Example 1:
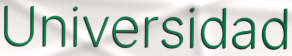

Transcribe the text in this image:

Universidad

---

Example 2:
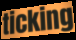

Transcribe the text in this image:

ticking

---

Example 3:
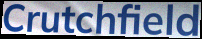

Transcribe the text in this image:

Crutchfield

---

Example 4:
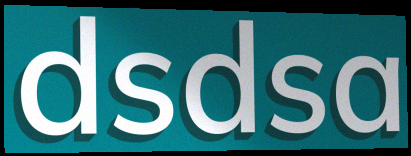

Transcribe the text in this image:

dsdsa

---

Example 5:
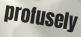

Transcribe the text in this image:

profusely